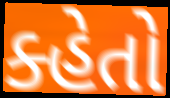
ક્હેતો